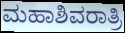
ಮಹಾಶಿವರಾತ್ರಿ